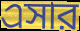
এসার